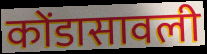
कोंडासावली